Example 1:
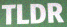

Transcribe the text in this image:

TLDR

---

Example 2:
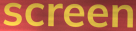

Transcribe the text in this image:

screen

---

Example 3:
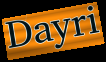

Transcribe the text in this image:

Dayri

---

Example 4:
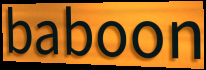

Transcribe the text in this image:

baboon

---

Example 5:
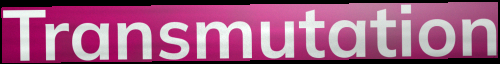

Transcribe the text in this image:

Transmutation